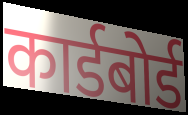
कार्डबोर्ड